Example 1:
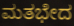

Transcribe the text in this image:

ಮತಭೇದ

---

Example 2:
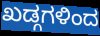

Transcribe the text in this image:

ಖಡ್ಗಗಳಿಂದ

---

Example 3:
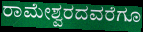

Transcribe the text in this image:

ರಾಮೇಶ್ವರದವರೆಗೂ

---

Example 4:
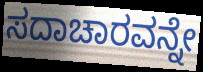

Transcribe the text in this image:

ಸದಾಚಾರವನ್ನೇ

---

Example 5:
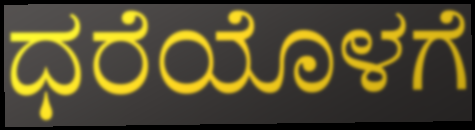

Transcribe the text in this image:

ಧರೆಯೊಳಗೆ